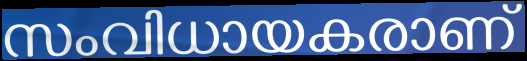
സംവിധായകരാണ്